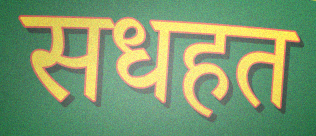
सधहत